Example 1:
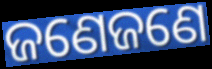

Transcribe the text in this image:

ଜଣେଜଣେ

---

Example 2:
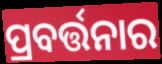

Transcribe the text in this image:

ପ୍ରବର୍ତ୍ତନାର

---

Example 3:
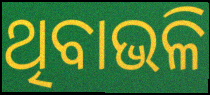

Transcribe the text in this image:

ଥିବାଭଳି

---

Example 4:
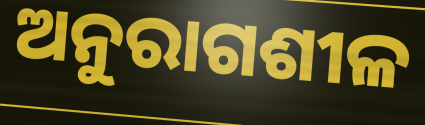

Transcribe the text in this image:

ଅନୁରାଗଶୀଳ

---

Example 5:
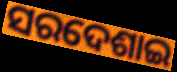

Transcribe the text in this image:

ସରଦେଶାଇ